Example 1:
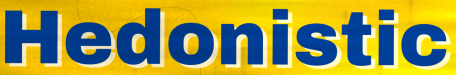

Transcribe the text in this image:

Hedonistic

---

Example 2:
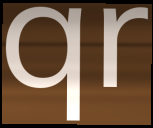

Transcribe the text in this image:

qr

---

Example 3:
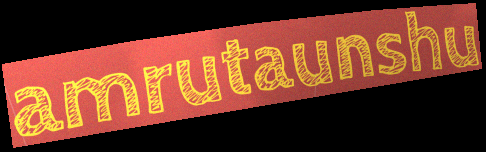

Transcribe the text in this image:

amrutaunshu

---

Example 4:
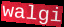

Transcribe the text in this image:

walgi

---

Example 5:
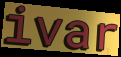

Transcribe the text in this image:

ivar